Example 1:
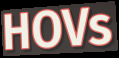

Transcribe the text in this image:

HOVs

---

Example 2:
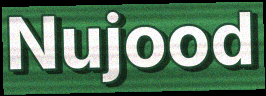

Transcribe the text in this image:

Nujood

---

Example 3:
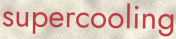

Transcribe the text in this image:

supercooling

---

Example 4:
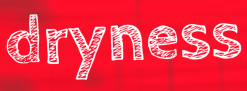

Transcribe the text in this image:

dryness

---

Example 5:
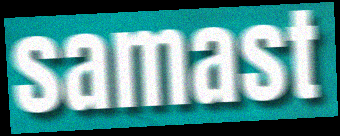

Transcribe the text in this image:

samast